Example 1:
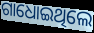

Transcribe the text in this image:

ଗାଧୋଇଥିଲେ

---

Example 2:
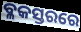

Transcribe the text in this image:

ବ୍ଳକସ୍ତରରେ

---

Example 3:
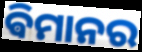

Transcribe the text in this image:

ଵିମାନର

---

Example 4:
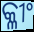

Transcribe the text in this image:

କ୍ଳୀଂ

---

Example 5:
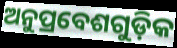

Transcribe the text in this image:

ଅନୁପ୍ରବେଶଗୁଡ଼ିକ